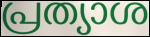
പ്രത്യാശ